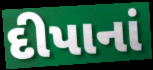
દીપાનાં